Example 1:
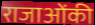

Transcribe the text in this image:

राजाओंकी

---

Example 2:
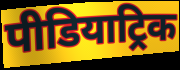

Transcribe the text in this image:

पीडियाट्रिक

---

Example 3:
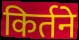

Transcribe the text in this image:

किर्तने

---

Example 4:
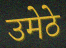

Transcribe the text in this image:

उमेठे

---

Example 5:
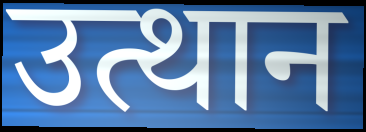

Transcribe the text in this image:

उत्थान